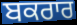
ਬਕਰਾਰ